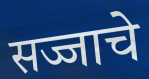
सज्जाचे